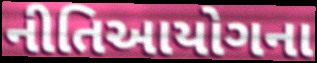
નીતિઆયોગના